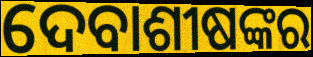
ଦେବାଶୀଷଙ୍କର